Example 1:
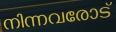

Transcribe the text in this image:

നിന്നവരോട്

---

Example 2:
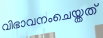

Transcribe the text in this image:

വിഭാവനംചെയ്തത്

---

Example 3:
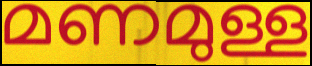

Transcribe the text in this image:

മണമുള്ള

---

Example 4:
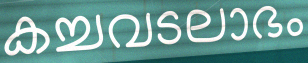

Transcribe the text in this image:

കച്ചവടലാഭം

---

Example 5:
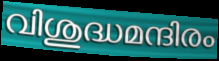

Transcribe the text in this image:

വിശുദ്ധമന്ദിരം